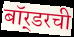
बॉर्डरची